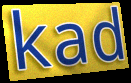
kad